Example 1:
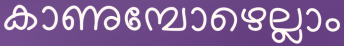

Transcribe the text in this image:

കാണുമ്പോഴെല്ലാം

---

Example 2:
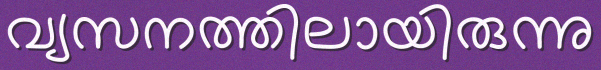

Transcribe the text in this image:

വ്യസനത്തിലായിരുന്നു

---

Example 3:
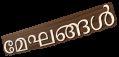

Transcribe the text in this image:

മേഘങ്ങൾ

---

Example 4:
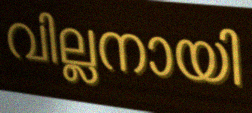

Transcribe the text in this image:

വില്ലനായി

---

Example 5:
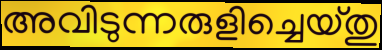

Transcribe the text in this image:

അവിടുന്നരുളിച്ചെയ്തു